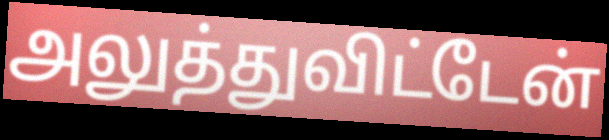
அலுத்துவிட்டேன்